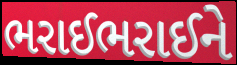
ભરાઈભરાઈને